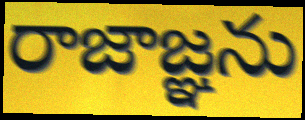
రాజాజ్ఞను